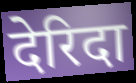
देरिदा